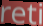
reti